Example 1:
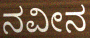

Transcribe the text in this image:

ನವೀನ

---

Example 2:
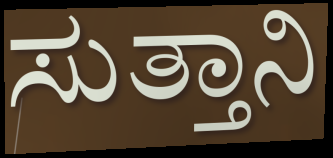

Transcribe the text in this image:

ಸುತ್ತಾನಿ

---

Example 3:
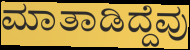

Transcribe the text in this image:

ಮಾತಾಡಿದ್ದೆವು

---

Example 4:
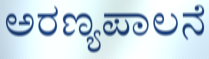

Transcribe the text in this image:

ಅರಣ್ಯಪಾಲನೆ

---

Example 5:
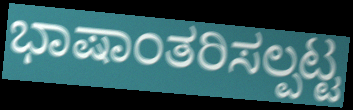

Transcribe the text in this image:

ಭಾಷಾಂತರಿಸಲ್ಪಟ್ಟ